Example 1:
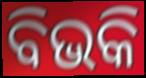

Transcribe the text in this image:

ବିଭକି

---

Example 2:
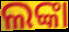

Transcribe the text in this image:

ଲଙ୍କା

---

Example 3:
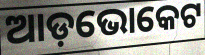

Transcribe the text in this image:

ଆଡ଼ଭୋକେଟ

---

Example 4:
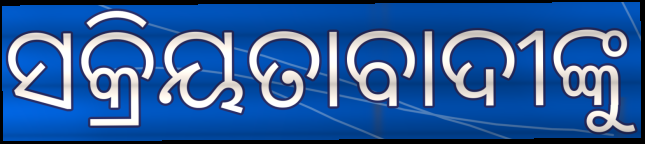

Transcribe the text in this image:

ସକ୍ରିୟତାବାଦୀଙ୍କୁ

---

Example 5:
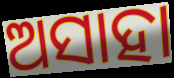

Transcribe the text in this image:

ଅସାହା